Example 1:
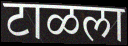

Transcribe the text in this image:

टाळला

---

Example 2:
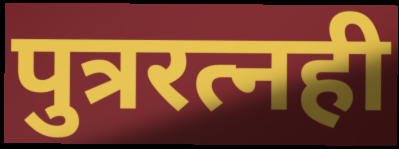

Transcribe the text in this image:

पुत्ररत्नही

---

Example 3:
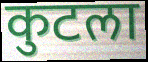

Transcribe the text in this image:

कुटला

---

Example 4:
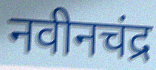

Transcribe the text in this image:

नवीनचंद्र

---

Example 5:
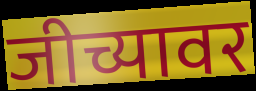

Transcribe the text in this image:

जीच्यावर